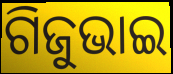
ଗିଜୁଭାଇ